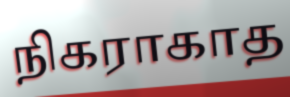
நிகராகாத